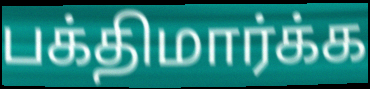
பக்திமார்க்க